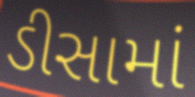
ડીસામાં